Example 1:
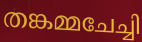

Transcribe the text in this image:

തങ്കമ്മചേച്ചി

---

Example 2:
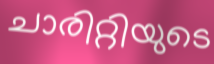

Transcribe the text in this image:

ചാരിറ്റിയുടെ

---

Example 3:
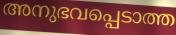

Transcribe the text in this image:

അനുഭവപ്പെടാത്ത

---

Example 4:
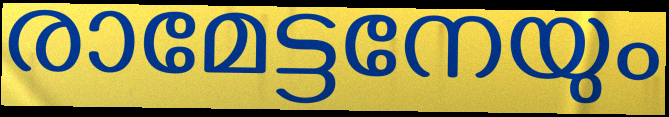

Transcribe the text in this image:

രാമേട്ടനേയും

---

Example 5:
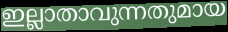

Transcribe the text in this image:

ഇല്ലാതാവുന്നതുമായ